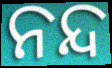
ନନ୍ଦ